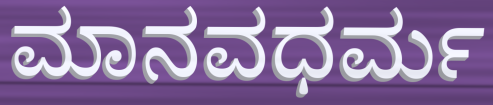
ಮಾನವಧರ್ಮ